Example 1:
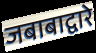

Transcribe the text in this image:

जबाबाद्वारे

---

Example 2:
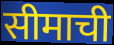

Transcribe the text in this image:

सीमाची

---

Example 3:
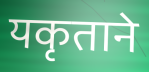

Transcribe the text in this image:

यकृताने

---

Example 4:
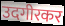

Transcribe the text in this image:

उदगीरकर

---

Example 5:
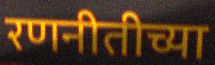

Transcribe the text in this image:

रणनीतीच्या